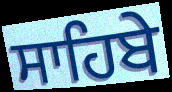
ਸਾਹਿਬੇ